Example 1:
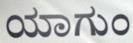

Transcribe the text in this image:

ಯಾಗುಂ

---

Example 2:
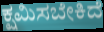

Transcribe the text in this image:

ಕ್ಷಮಿಸಬೇಕಿದೆ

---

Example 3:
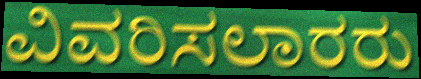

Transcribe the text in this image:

ವಿವರಿಸಲಾರರು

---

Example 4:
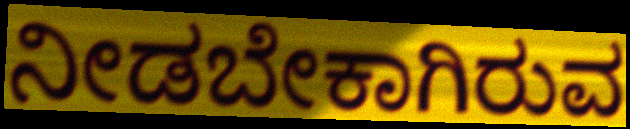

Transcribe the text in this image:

ನೀಡಬೇಕಾಗಿರುವ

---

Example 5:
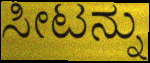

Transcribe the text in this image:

ಸೀಟನ್ನು